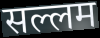
सल्लम